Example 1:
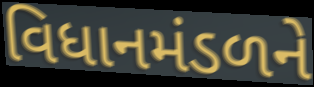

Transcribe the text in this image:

વિધાનમંડળને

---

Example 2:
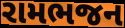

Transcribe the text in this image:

રામભજન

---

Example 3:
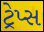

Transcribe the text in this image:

ટ્રેપ્સ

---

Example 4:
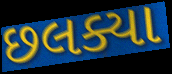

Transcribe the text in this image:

છલક્યા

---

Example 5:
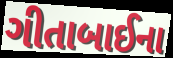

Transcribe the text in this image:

ગીતાબાઈના